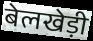
बेलखेड़ी